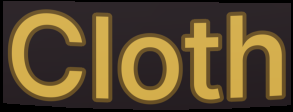
Cloth